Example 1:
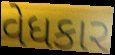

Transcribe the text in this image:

વેધકાર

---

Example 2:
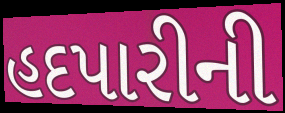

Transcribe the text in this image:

હદપારીની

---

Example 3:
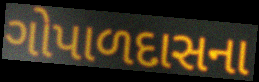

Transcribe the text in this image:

ગોપાળદાસના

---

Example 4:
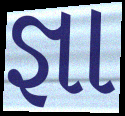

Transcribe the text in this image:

જ્ઞા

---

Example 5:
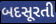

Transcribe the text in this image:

બદસૂરતી